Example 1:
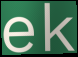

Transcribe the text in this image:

ek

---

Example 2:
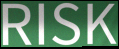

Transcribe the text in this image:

RISK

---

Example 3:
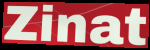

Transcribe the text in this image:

Zinat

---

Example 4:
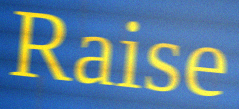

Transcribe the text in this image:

Raise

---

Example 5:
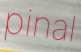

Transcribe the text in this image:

pinal